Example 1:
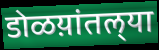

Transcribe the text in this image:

डोळय़ांतल्या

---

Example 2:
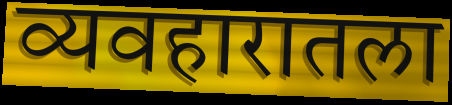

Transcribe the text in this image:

व्यवहारातला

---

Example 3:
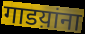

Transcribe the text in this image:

गाडय़ांना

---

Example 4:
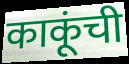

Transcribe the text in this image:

काकूंची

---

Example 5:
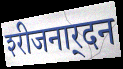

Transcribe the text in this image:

श्रीजनार्दन